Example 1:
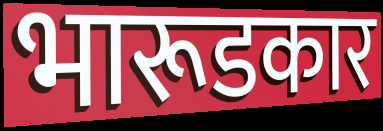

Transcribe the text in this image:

भारूडकार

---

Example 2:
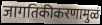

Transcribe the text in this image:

जागतिकीकरणामुळं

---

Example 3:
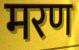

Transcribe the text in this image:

मरण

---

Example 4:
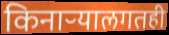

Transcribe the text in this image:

किनाऱ्यालगतही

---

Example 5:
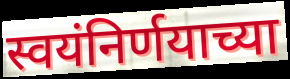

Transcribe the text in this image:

स्वयंनिर्णयाच्या